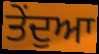
ਤੇਂਦੁਆ